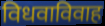
विधवाविवाह